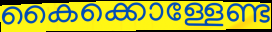
കൈക്കൊള്ളേണ്ട